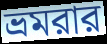
ভ্রমরার